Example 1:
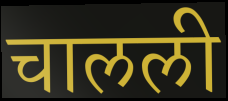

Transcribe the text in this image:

चालली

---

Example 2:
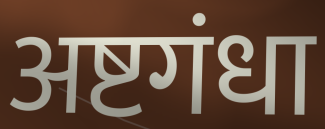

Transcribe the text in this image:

अष्टगंधा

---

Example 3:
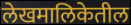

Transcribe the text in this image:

लेखमालिकेतील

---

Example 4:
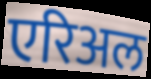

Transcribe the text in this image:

एरिअल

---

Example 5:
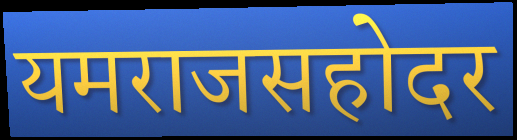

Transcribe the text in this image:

यमराजसहोदर